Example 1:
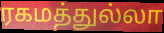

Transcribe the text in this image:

ரகமத்துல்லா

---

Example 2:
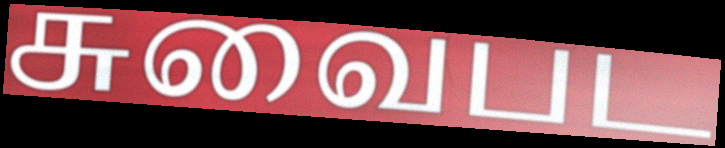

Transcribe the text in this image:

சுவைபட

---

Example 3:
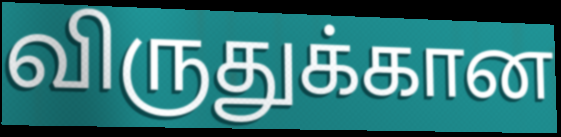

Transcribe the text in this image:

விருதுக்கான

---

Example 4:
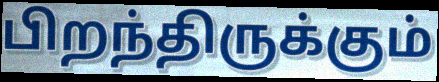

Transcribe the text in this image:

பிறந்திருக்கும்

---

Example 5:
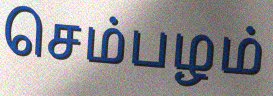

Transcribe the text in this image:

செம்பழம்